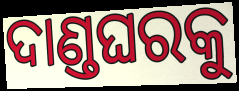
ଦାଣ୍ଡଘରକୁ